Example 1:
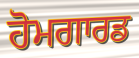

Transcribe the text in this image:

ਹੋਮਗਾਰਡ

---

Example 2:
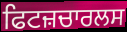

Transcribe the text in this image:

ਫਿਟਜ਼ਚਾਰਲਸ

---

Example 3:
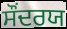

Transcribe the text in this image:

ਸੌਂਦਰਯ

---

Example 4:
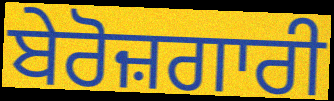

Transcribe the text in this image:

ਬੇਰੋਜ਼ਗਾਰੀ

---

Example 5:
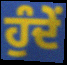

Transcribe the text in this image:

ਹੁੰਦੇਂ